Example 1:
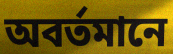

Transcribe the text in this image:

অবর্তমানে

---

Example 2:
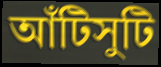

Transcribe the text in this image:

আঁটিসুটি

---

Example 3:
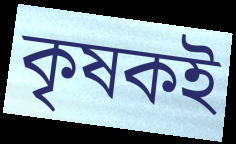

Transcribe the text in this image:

কৃষকই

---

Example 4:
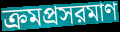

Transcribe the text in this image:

ক্রমপ্রসরমাণ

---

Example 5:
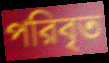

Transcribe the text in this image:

পরিবৃত